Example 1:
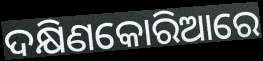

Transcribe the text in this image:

ଦକ୍ଷିଣକୋରିଆରେ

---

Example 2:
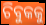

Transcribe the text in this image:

ଚିବୁକକୁ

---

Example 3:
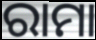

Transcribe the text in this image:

ରାମା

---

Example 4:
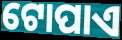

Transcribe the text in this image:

ଟୋପାଏ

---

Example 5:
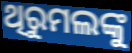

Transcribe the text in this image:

ଥିରୁମଲଙ୍କୁ